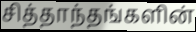
சித்தாந்தங்களின்